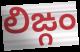
లిఙ్గం